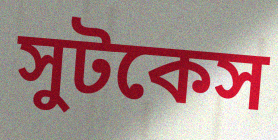
সুটকেস